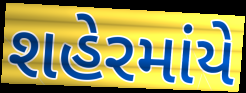
શહેરમાંયે